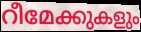
റീമേക്കുകളും